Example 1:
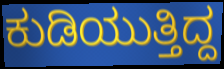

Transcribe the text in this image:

ಕುಡಿಯುತ್ತಿದ್ದ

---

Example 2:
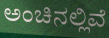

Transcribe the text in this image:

ಅಂಚಿನಲ್ಲಿವೆ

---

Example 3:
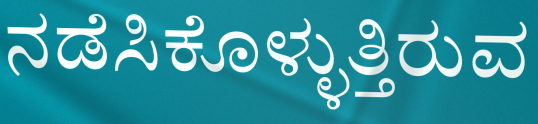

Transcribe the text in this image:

ನಡೆಸಿಕೊಳ್ಳುತ್ತಿರುವ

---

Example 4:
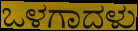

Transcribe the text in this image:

ಒಳಗಾದಳು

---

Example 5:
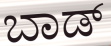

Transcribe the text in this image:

ಬಾಡ್